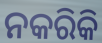
ନକରିକି